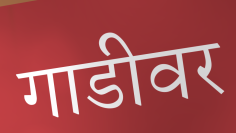
गाडीवर